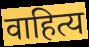
वाहित्य